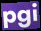
pgi